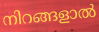
നിറങ്ങളാൽ